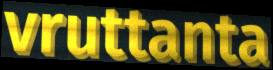
vruttanta